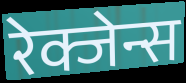
रेक्जेन्स